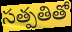
సత్పతితో